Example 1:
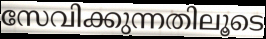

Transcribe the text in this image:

സേവിക്കുന്നതിലൂടെ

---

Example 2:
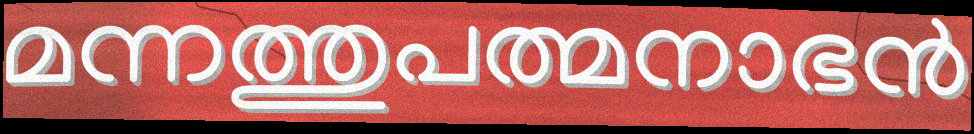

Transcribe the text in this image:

മന്നത്തുപത്മനാഭൻ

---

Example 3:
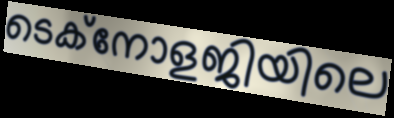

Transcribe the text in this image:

ടെക്നോളജിയിലെ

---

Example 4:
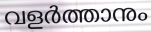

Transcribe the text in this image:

വളർത്താനും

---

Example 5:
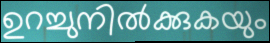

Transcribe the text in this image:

ഉറച്ചുനിൽക്കുകയും